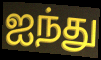
ஐந்து